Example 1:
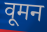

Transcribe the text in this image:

वूमन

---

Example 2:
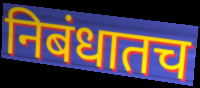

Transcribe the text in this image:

निबंधातच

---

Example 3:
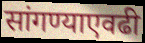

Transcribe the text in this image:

सांगण्याएवढी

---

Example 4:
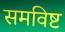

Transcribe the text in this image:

समविष्ट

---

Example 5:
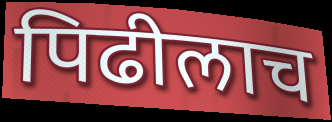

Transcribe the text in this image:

पिढीलाच